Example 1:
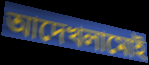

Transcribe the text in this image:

আদেখলামোই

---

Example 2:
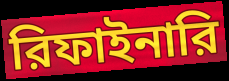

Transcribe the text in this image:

রিফাইনারি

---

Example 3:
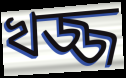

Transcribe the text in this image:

খজ্জ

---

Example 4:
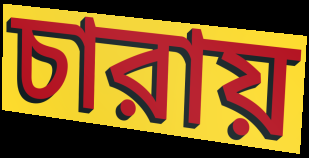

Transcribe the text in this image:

চারায়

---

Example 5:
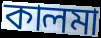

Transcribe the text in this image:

কালমা